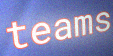
teams